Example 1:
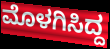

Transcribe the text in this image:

ಮೊಳಗಿಸಿದ್ದ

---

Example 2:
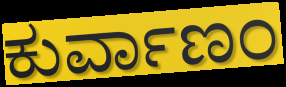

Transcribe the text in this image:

ಕುರ್ವಾಣಂ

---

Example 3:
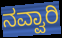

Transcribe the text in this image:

ನವ್ವಾರಿ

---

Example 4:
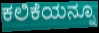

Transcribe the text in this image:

ಕಲಿಕೆಯನ್ನೂ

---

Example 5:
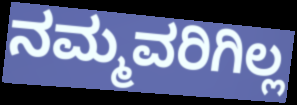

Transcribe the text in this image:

ನಮ್ಮವರಿಗಿಲ್ಲ